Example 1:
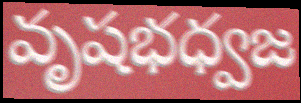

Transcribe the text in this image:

వృషభధ్వజ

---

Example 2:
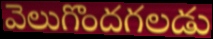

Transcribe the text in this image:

వెలుగొందగలడు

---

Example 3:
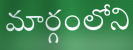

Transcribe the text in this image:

మార్గంలోని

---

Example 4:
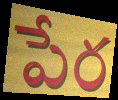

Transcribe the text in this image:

పేర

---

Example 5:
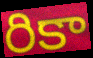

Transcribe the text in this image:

రికా